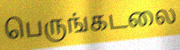
பெருங்கடலை